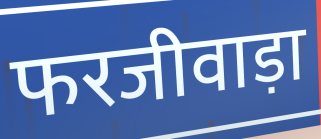
फरजीवाड़ा